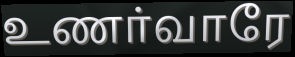
உணர்வாரே